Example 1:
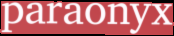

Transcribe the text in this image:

paraonyx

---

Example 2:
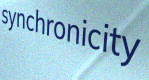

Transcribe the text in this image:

synchronicity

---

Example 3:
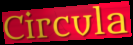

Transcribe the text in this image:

Circula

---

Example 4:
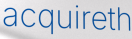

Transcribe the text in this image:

acquireth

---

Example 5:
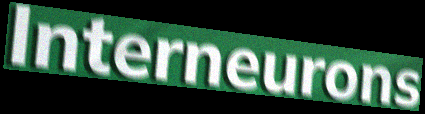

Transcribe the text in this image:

Interneurons